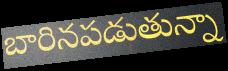
బారినపడుతున్నా